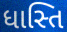
ધાસ્તિ